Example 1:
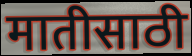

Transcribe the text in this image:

मातीसाठी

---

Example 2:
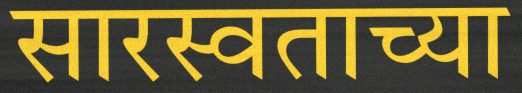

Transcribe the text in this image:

सारस्वताच्या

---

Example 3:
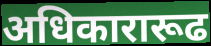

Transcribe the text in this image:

अधिकारारूढ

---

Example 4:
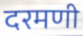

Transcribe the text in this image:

दरमणी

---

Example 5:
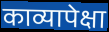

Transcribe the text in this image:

काव्यापेक्षा